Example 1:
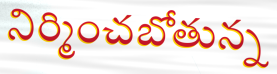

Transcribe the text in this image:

నిర్మించబోతున్న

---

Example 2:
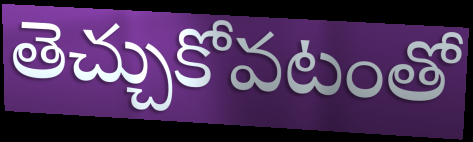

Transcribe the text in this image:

తెచ్చుకోవటంతో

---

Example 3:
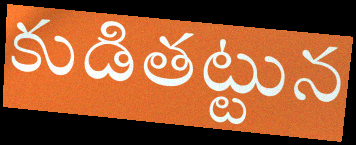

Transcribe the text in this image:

కుడితట్టున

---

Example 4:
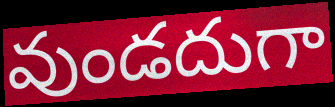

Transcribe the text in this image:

వుండదుగా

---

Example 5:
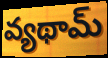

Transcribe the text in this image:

వ్యథామ్